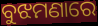
ବୁଝମଣାରେ